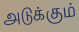
அடுக்கும்